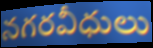
నగరవీధులు